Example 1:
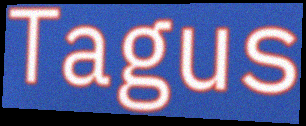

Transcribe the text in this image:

Tagus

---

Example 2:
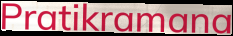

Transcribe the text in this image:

Pratikramana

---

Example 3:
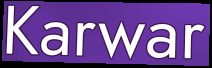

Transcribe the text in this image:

Karwar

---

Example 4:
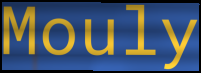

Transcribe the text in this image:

Mouly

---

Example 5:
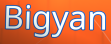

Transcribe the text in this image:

Bigyan